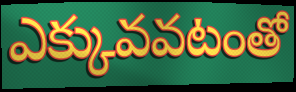
ఎక్కువవటంతో